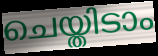
ചെയ്തിടാം